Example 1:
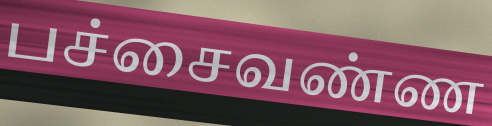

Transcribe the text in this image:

பச்சைவண்ண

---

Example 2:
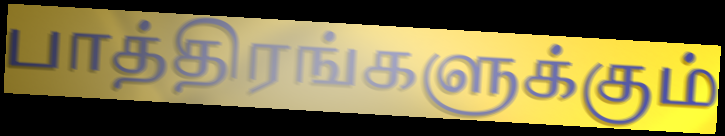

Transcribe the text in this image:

பாத்திரங்களுக்கும்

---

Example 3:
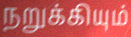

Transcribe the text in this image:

நறுக்கியும்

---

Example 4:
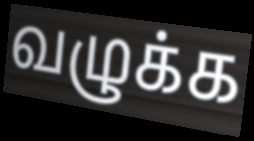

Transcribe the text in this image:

வழுக்க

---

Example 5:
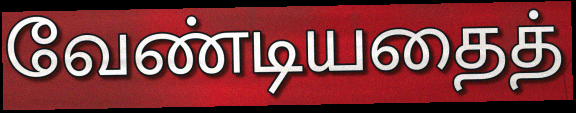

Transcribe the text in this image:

வேண்டியதைத்